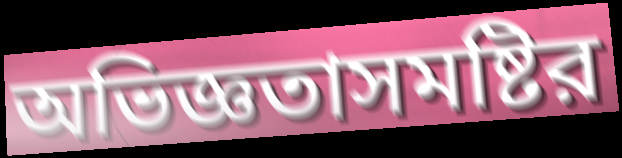
অভিজ্ঞতাসমষ্টির